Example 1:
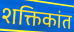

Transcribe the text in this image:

शक्तिकांत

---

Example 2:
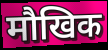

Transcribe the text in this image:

मौखिक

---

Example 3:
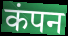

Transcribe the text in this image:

कंपन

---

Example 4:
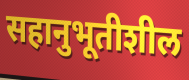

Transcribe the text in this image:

सहानुभूतीशील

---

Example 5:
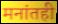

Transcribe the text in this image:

मनांतही